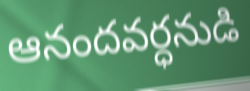
ఆనందవర్ధనుడి